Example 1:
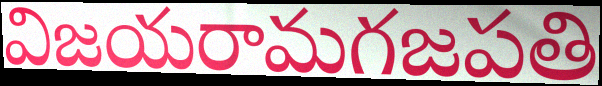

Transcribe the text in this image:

విజయరామగజపతి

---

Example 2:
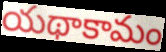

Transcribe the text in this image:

యథాకామం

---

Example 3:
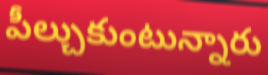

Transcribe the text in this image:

పీల్చుకుంటున్నారు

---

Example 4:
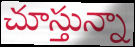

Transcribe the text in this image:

చూస్తున్నా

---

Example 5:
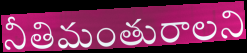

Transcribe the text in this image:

నీతిమంతురాలని